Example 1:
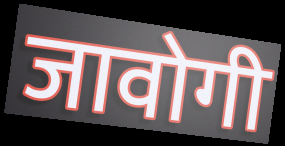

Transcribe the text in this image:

जावोगी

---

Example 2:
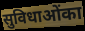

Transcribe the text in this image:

सुविधाओंका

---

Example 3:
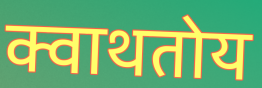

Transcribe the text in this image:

क्वाथतोय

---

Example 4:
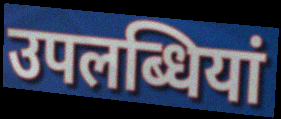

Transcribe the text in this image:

उपलब्धियां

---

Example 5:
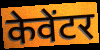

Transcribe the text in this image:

केवेंटर